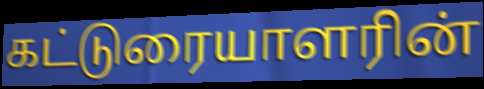
கட்டுரையாளரின்